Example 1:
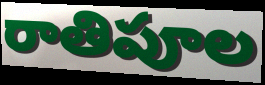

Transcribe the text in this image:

రాతిపూల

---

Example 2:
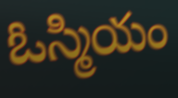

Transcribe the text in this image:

ఓస్మియం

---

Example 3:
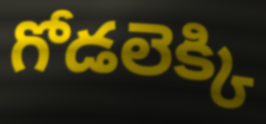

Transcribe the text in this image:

గోడలెక్కి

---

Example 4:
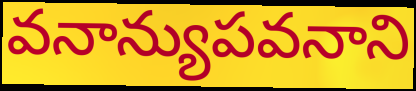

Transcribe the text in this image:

వనాన్యుపవనాని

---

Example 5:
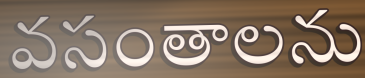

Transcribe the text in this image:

వసంతాలను